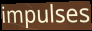
impulses